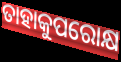
ତାହାକୁପରୋକ୍ଷ